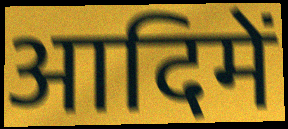
आदिमें